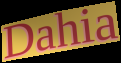
Dahia